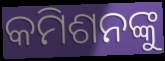
କମିଶନଙ୍କୁ